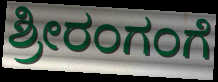
ಶ್ರೀರಂಗಂಗೆ